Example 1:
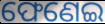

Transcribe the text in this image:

ଫେଣେଇ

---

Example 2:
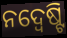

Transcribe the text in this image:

ନଦ୍ୱେଷ୍ଟି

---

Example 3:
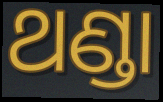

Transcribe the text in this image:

ଥଣ୍ଡା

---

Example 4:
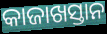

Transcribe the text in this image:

କାଜାଖସ୍ତାନ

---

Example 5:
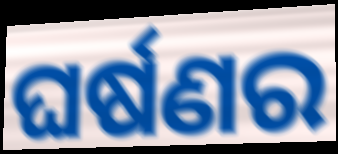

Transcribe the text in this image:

ଘର୍ଷଣର